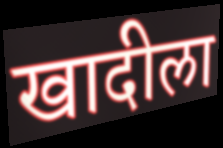
खादीला